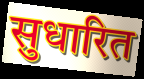
सुधारित